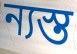
ন্যস্ত